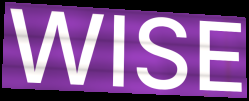
WISE